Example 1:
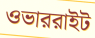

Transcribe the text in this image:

ওভাররাইট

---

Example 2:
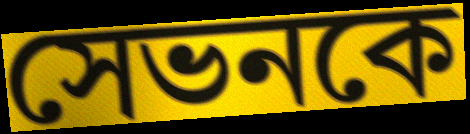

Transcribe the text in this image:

সেভনকে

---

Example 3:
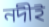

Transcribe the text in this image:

নদীই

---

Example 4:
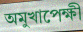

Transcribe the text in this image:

অমুখাপেক্ষী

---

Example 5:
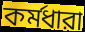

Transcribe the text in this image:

কর্মধারা